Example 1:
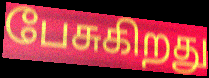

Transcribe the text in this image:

பேசுகிறது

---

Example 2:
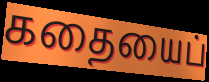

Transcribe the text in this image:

கதையைப்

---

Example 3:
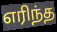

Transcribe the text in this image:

எரிந்த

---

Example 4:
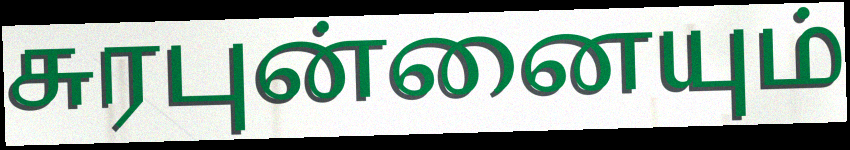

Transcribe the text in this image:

சுரபுன்னையும்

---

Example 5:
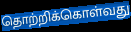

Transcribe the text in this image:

தொற்றிக்கொள்வது